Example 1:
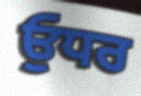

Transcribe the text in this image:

ਓੁਧਰ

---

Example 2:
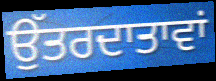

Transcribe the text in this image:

ਉੱਤਰਦਾਤਾਵਾਂ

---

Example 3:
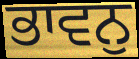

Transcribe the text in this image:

ਭਾਵਨੁ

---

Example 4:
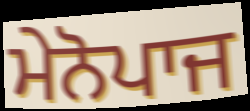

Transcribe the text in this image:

ਮੇਨੋਪਾਜ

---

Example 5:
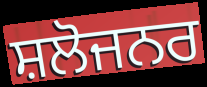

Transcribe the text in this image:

ਸ਼ਲੋਜਨਰ